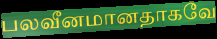
பலவீனமானதாகவே